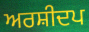
ਅਰਸ਼ੀਦਪ